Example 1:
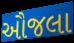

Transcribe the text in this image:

ઔજલા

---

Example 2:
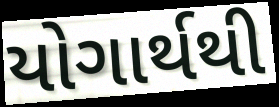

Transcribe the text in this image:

યોગાર્થથી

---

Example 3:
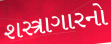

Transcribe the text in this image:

શસ્ત્રાગારનો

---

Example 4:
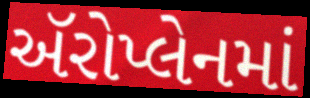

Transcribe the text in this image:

ઍરોપ્લેનમાં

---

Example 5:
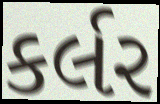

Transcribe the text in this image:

કર્લર